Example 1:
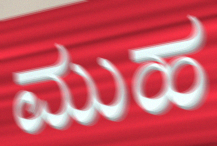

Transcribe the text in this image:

ಮುಹ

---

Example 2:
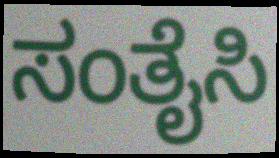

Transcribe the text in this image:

ಸಂತೈಸಿ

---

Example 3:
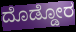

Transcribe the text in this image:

ದೊಡ್ಡೋರ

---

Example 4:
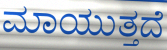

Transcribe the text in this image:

ಮಾಯುತ್ತದೆ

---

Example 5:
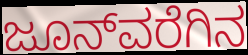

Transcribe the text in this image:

ಜೂನ್‌ವರೆಗಿನ